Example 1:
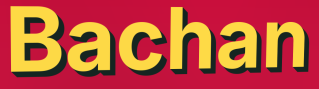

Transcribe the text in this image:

Bachan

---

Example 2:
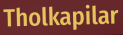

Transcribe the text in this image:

Tholkapilar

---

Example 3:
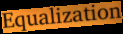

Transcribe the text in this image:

Equalization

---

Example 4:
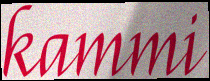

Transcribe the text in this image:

kammi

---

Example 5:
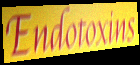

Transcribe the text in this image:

Endotoxins